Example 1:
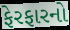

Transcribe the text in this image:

ફેરફારનો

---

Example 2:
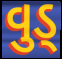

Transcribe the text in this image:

વુડ્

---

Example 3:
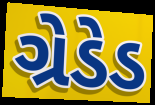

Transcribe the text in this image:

ગ્રેડેડ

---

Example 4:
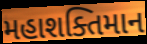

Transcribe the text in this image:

મહાશક્તિમાન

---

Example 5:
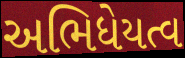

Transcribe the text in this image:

અભિધેયત્વ